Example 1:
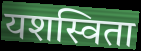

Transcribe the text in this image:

यशस्विता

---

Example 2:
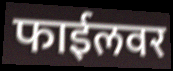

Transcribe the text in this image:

फाईलवर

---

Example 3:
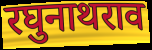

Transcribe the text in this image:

रघुनाथराव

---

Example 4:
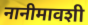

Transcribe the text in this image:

नानीमावशी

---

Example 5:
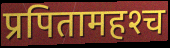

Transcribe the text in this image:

प्रपितामहश्च